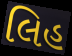
લિહ